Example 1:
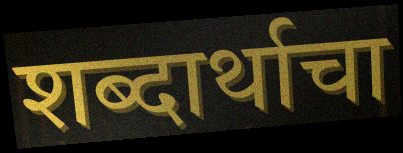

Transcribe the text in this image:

शब्दार्थाचा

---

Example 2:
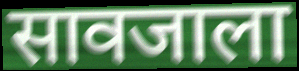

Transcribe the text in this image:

सावजाला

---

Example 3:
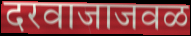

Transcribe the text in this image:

दरवाजाजवळ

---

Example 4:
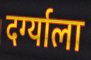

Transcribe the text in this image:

दर्ग्याला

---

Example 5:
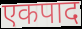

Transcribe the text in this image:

एकपाद